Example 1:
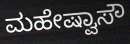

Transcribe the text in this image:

ಮಹೇಷ್ವಾಸೌ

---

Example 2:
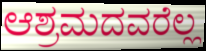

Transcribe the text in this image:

ಆಶ್ರಮದವರೆಲ್ಲ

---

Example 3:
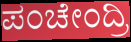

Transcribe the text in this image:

ಪಂಚೇಂದ್ರಿ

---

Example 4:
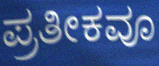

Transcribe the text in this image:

ಪ್ರತೀಕವೂ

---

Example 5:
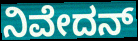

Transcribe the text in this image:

ನಿವೇದನ್